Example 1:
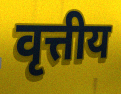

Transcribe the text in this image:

वृत्तीय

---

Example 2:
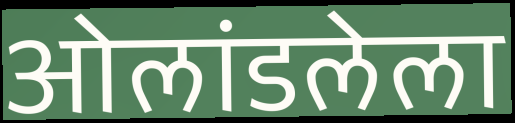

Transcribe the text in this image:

ओलांडलेला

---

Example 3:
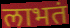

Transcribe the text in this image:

लाभतं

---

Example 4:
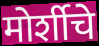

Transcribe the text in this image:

मोर्शीचे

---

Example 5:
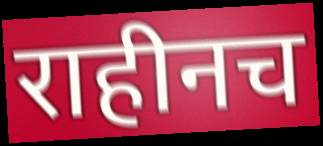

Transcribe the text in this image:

राहीनच